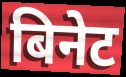
बिनेट